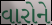
વારોને